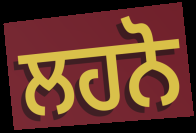
ਲਹਨੋ